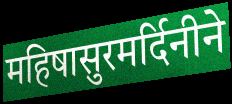
महिषासुरमर्दिनीने